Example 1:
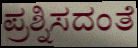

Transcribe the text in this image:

ಪ್ರಶ್ನಿಸದಂತೆ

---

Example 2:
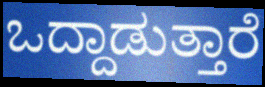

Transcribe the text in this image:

ಒದ್ದಾಡುತ್ತಾರೆ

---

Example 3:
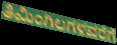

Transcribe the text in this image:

ತಿಮಿಂಗಿಲಗಳವರೆಗೆ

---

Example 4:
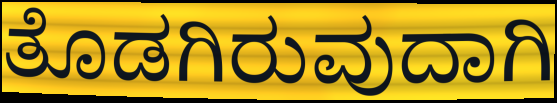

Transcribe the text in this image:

ತೊಡಗಿರುವುದಾಗಿ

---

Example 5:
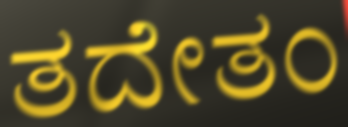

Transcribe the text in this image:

ತದೇತಂ